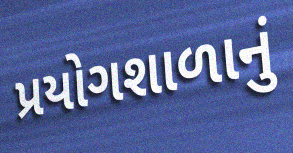
પ્રયોગશાળાનું